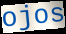
ojos